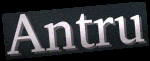
Antru